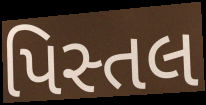
પિસ્તલ